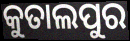
କୁତାଲପୁର